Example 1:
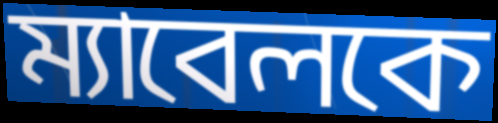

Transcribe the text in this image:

ম্যাবেলকে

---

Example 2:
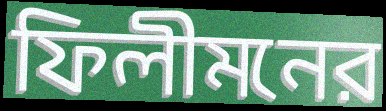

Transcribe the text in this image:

ফিলীমনের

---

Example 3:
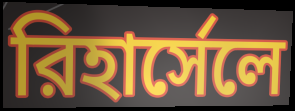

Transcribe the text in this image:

রিহার্সেলে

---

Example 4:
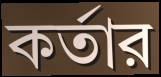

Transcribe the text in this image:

কর্তার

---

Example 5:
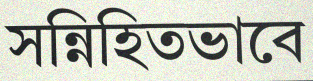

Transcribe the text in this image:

সন্নিহিতভাবে